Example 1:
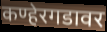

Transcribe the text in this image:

कण्हेरगडावर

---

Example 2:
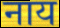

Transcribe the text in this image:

नाय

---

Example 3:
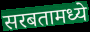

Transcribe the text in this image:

सरबतामध्ये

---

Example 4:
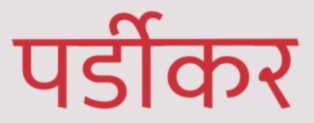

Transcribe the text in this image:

पर्डीकर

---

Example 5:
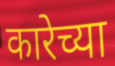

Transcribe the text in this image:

कारेच्या